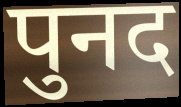
पुनद